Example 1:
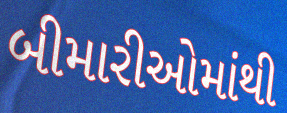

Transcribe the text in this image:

બીમારીઓમાંથી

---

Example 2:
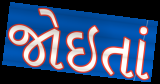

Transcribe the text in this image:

જોઇતાં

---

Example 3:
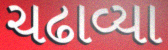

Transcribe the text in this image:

ચઢાવ્યા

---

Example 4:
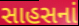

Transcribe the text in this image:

સાહસનાં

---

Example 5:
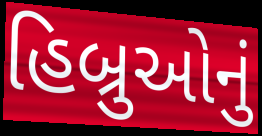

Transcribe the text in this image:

હિબ્રુઓનું